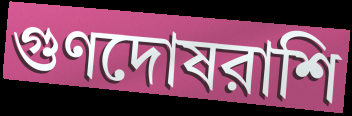
গুণদোষরাশি